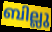
ബില്ലു